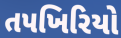
તપખિરિયો